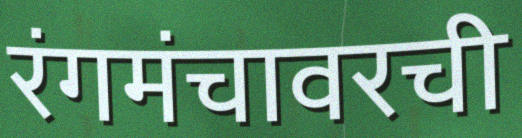
रंगमंचावरची